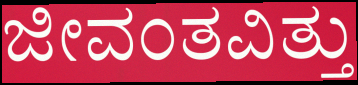
ಜೀವಂತವಿತ್ತು